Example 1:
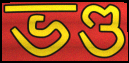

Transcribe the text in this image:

ভণ্ড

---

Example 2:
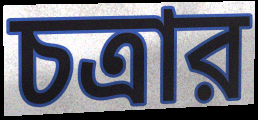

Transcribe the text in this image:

চত্রার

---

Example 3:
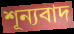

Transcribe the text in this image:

শূন্যবাদ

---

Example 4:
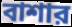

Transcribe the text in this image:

বাশার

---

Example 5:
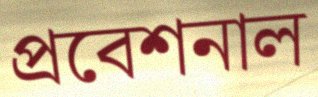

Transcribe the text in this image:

প্রবেশনাল